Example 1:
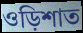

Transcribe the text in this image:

ওড়িশাত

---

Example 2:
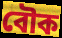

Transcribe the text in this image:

বৌক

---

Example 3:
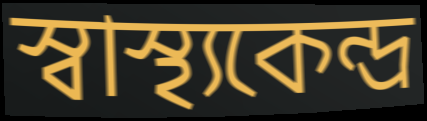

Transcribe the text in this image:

স্বাস্থ্যকেন্দ্ৰ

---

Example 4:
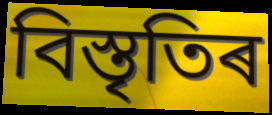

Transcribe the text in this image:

বিস্তৃতিৰ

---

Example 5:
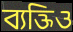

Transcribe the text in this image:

ব্যক্তিও